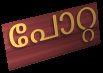
പോറ്റ